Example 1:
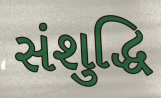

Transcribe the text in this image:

સંશુદ્ધિ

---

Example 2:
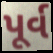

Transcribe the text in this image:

પૂર્વ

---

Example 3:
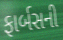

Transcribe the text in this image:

ફાર્બસની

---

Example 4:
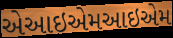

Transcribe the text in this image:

એઆઇએમઆઇએમ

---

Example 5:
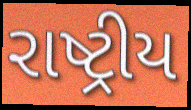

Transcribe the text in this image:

રાષ્ટ્રીય